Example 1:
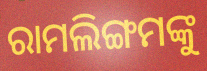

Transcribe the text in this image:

ରାମଲିଙ୍ଗମଙ୍କୁ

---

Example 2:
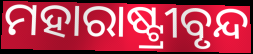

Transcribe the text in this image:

ମହାରାଷ୍ଟ୍ରୀବୃନ୍ଦ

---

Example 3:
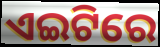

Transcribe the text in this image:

ଏଇଟିରେ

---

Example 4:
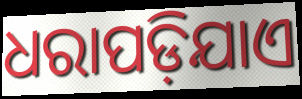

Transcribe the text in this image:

ଧରାପଡ଼ିଯାଏ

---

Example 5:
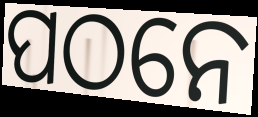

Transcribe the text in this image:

ପଠନେ